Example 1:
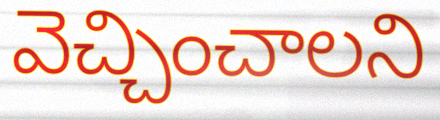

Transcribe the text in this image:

వెచ్చించాలని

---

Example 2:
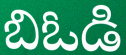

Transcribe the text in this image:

బిఓడి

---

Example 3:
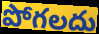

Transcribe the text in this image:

పోగలదు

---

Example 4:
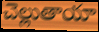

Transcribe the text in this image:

చెల్లుతాయా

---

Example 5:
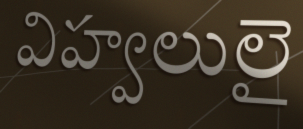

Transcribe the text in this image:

విహ్వలులై